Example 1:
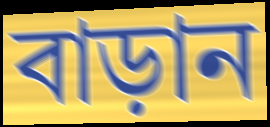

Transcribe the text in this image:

বাড়ান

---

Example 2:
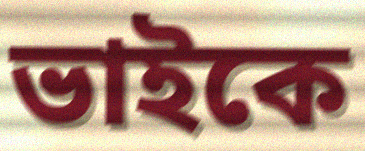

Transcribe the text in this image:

ভাইকে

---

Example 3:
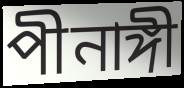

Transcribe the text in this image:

পীনাঙ্গী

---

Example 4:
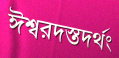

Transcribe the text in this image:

ঈশ্বরদস্তদর্থং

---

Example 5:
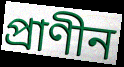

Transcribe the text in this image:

প্রাণীন